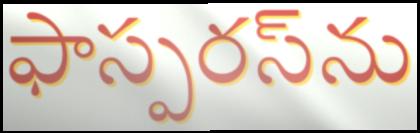
ఫాస్పరస్‌ను